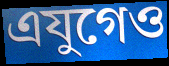
এযুগেও